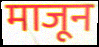
माजून